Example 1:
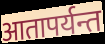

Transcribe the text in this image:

आतापर्यन्त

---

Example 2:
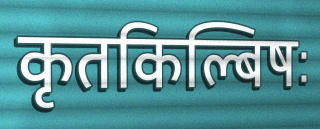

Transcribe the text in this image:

कृतकिल्बिषः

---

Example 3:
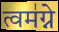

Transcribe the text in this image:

त्वम॑ग्ने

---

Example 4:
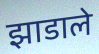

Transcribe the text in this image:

झाडाले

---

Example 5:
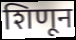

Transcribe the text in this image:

शिणून